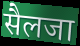
सैलजा